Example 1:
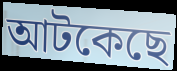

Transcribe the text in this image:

আটকেছে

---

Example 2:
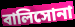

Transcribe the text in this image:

বালিসোনা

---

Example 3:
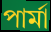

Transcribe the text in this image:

পার্মা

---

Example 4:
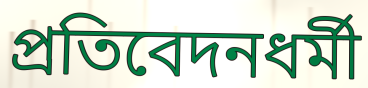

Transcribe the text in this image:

প্রতিবেদনধর্মী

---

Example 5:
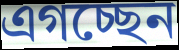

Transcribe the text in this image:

এগচ্ছেন